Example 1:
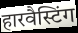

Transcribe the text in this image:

हारवैस्टिंग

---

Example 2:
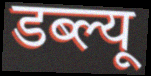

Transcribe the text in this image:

डब्ल्यू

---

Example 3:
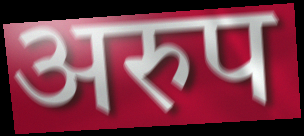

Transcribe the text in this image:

अरुप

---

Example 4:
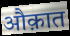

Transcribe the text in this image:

औक़ात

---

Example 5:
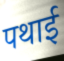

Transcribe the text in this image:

पथाई